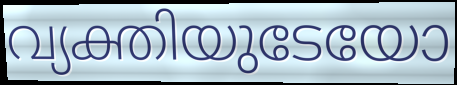
വ്യക്തിയുടേയോ